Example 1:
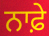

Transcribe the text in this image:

ਨਾਫ਼ੇ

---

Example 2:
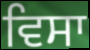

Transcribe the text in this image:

ਵਿਸਾ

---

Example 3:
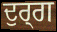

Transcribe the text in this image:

ਦੁਰ੍ਗ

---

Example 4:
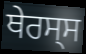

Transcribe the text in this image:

ਥੇਰਸ੍ਸ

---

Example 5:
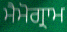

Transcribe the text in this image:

ਮੈਮੋਗ੍ਰਾਮ